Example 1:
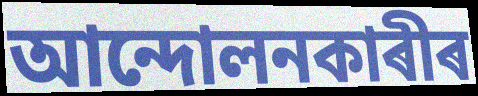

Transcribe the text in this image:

আন্দোলনকাৰীৰ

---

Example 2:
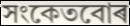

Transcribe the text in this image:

সংকেতবোৰ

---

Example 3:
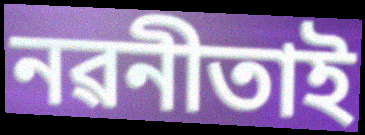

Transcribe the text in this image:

নৱনীতাই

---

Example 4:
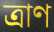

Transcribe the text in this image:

ত্ৰাণ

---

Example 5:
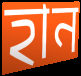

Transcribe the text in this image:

হান